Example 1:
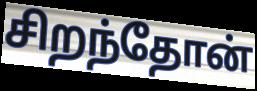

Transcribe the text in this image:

சிறந்தோன்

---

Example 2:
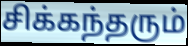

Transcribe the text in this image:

சிக்கந்தரும்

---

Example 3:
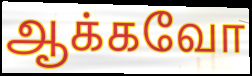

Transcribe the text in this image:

ஆக்கவோ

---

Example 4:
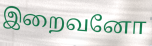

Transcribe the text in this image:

இறைவனோ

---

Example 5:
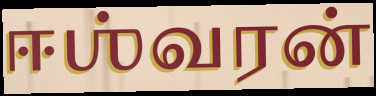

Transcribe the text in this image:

ஈஶ்வரன்